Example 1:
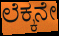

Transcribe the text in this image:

ಲೆಕ್ಕನೇ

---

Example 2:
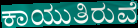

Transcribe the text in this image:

ಕಾಯುತಿರುವೆ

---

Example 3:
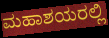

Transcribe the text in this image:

ಮಹಾಶಯರಲ್ಲಿ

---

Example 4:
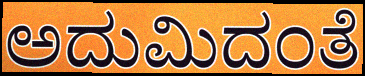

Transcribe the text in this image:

ಅದುಮಿದಂತೆ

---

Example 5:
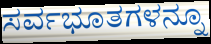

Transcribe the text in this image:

ಸರ್ವಭೂತಗಳನ್ನೂ